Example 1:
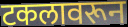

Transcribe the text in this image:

टकलावरून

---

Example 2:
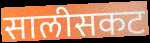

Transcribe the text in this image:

सालीसकट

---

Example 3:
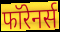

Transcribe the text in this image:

फॉरेनर्स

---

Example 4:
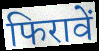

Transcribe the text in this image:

फिरावें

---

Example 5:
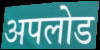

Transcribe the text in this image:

अपलोड